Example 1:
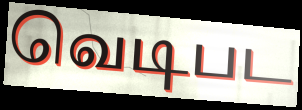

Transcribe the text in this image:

வெடிபட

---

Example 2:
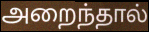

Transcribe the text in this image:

அறைந்தால்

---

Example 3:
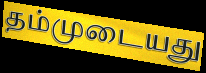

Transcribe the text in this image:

தம்முடையது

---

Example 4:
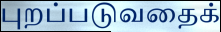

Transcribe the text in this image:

புறப்படுவதைக்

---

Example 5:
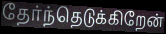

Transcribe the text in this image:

தேர்ந்தெடுக்கிறேன்